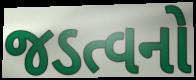
જડત્વનો